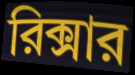
রিক্সার